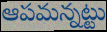
ఆపమన్నట్టు